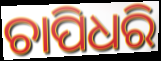
ଚାପିଧରି